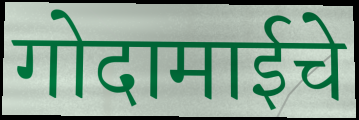
गोदामाईचे